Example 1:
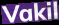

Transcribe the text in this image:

Vakil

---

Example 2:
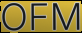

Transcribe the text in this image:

OFM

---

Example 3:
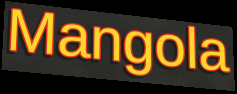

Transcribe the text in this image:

Mangola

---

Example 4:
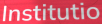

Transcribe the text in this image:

Institutio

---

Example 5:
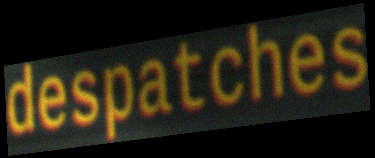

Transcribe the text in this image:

despatches